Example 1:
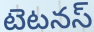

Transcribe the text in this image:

టెటనస్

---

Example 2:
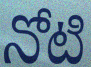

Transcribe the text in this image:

నోటి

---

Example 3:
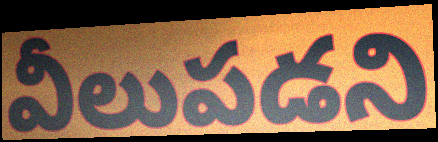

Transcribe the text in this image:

వీలుపడని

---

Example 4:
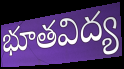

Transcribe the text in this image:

భూతవిద్య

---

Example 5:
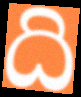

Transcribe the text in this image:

ది